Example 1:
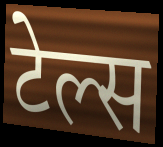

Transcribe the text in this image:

टेल्स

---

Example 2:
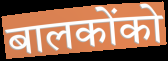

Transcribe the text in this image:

बालकोंको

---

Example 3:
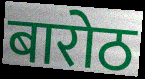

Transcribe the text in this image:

बारोठ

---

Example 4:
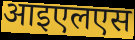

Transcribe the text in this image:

आइएलएस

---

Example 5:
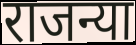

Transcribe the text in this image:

राजन्या